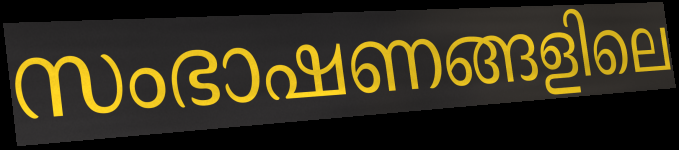
സംഭാഷണങ്ങളിലെ